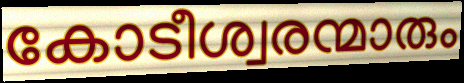
കോടീശ്വരന്മാരും